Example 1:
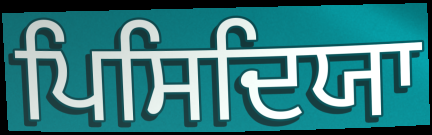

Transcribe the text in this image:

ਪਿਸਿਦਿਯਾ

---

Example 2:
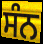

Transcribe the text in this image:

ਸੰਨ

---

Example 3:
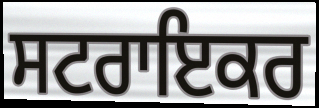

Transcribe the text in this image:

ਸਟਰਾਇਕਰ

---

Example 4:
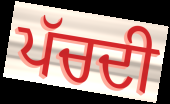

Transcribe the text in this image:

ਪੱਚਦੀ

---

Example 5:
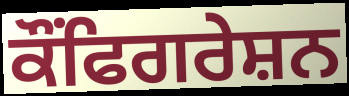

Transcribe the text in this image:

ਕੌਂਫਿਗਰੇਸ਼ਨ